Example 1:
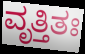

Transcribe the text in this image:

ವೃತ್ತಿತಃ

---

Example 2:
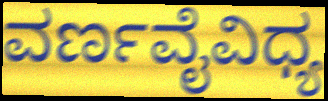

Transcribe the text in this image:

ವರ್ಣವೈವಿಧ್ಯ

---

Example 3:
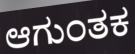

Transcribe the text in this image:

ಆಗುಂತಕ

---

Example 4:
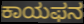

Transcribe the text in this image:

ಕಾಯಫನ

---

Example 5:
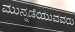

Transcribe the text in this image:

ಮುನ್ನಡೆಯುವವರು